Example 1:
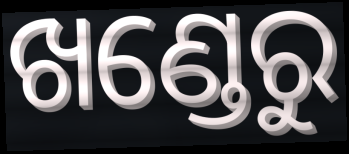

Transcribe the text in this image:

ଖଣ୍ଡେରୁ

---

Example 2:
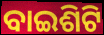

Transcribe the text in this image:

ବାଇଶିଟି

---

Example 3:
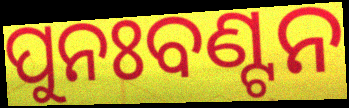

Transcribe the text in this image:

ପୁନଃବଣ୍ଟନ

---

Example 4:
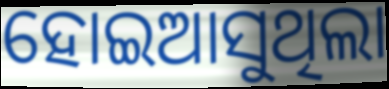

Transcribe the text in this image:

ହୋଇଆସୁଥିଲା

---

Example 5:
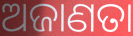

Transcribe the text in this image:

ଅଜାଣତା